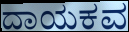
ದಾಯಕವ